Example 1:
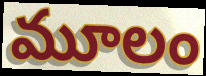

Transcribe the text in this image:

మూలం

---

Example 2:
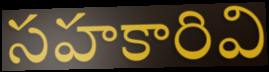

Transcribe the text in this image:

సహకారివి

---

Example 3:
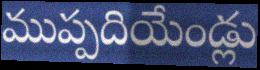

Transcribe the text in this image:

ముప్పదియేండ్లు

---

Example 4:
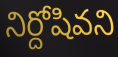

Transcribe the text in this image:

నిర్దోషివని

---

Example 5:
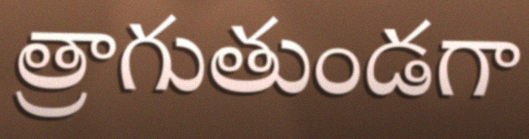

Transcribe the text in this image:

త్రాగుతుండగా